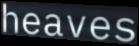
heaves